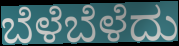
ಬೆಳೆಬೆಳೆದು